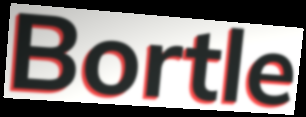
Bortle